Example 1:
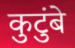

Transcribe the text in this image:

कुटुंबे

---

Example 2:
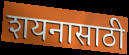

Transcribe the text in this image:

शयनासाठी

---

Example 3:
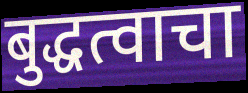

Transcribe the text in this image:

बुद्धत्वाचा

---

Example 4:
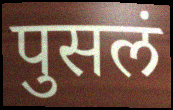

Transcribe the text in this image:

पुसलं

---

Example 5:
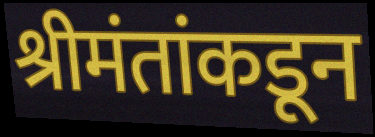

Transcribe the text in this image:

श्रीमंतांकडून